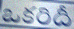
ఒకరిదీ